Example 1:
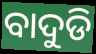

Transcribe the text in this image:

ବାଦୁଡି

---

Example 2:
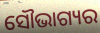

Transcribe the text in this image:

ସୌଭାଗ୍ୟର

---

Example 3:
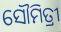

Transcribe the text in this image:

ସୌମିତ୍ରୀ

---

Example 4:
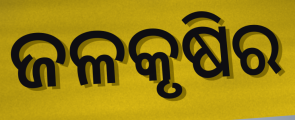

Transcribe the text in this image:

ଜଳକୃଷିର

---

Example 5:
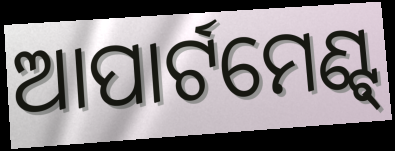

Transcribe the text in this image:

ଆପାର୍ଟମେଣ୍ଟ୍